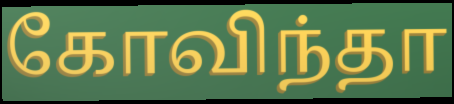
கோவிந்தா